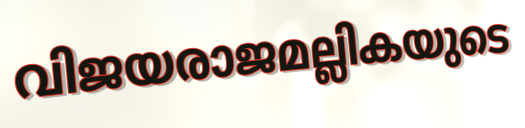
വിജയരാജമല്ലികയുടെ